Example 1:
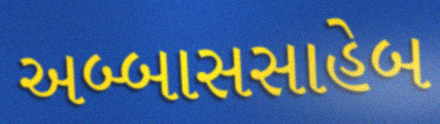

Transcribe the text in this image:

અબ્બાસસાહેબ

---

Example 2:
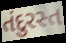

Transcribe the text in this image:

તંદુરસ્ત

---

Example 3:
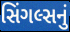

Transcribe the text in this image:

સિંગલ્સનું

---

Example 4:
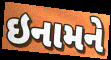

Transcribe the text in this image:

ઇનામને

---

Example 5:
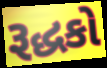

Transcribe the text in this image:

રૂદ્ધકો